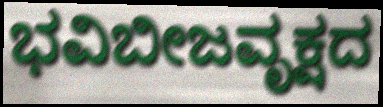
ಭವಿಬೀಜವೃಕ್ಷದ